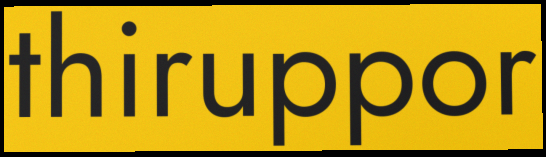
thiruppor